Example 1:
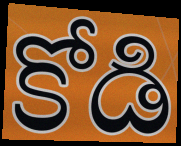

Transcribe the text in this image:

కోడి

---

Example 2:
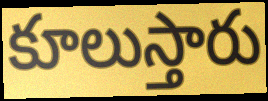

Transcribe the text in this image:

కూలుస్తారు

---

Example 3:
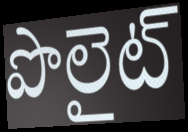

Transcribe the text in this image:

పొలైట్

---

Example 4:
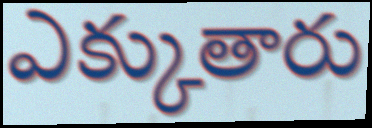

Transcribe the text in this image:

ఎక్కుతారు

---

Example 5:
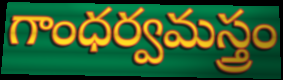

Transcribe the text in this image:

గాంధర్వమస్త్రం